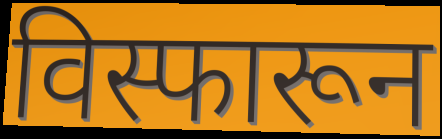
विस्फारून